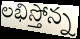
లభిస్తోన్న